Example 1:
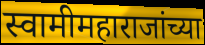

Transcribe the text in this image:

स्वामीमहाराजांच्या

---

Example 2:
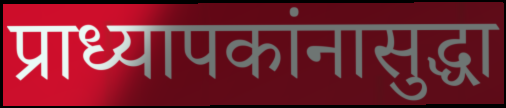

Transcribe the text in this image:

प्राध्यापकांनासुद्धा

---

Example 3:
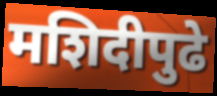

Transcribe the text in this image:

मशिदीपुढे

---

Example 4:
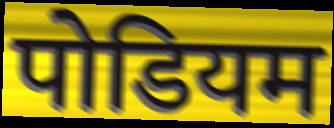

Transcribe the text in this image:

पोडियम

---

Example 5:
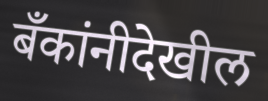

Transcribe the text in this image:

बँकांनीदेखील